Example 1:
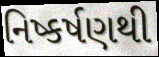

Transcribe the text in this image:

નિષ્કર્ષણથી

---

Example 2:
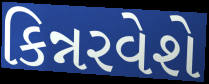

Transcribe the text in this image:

કિન્નરવેશે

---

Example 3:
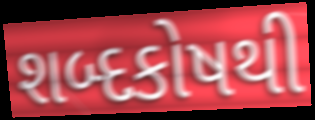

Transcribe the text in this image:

શબ્દકોષથી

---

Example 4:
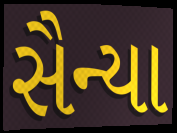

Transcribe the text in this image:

સૈન્યા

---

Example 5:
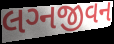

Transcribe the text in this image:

લગ્‍નજીવન